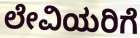
ಲೇವಿಯರಿಗೆ